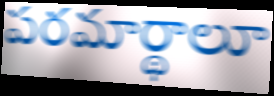
పరమార్థాలూ